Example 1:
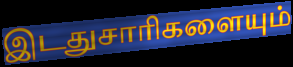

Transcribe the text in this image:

இடதுசாரிகளையும்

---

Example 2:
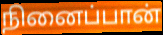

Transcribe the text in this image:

நினைப்பான்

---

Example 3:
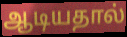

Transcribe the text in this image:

ஆடியதால்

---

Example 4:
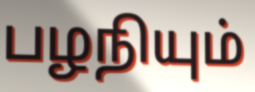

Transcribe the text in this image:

பழநியும்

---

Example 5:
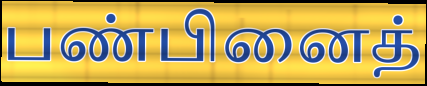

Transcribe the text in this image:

பண்பினைத்